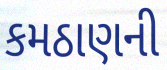
કમઠાણની